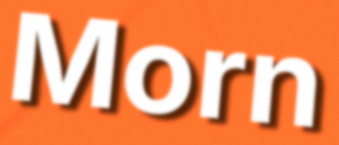
Morn